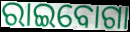
ରାଇବୋଗା